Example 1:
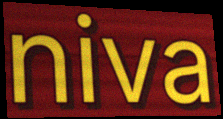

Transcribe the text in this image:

niva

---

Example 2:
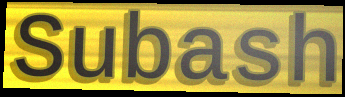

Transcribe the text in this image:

Subash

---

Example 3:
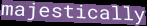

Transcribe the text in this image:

majestically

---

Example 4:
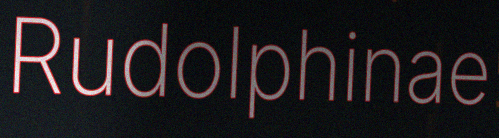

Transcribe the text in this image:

Rudolphinae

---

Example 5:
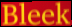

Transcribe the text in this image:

Bleek